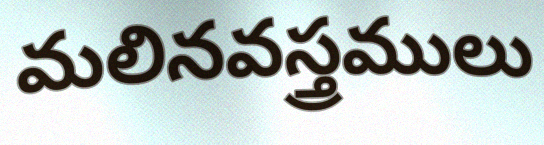
మలినవస్త్రములు